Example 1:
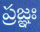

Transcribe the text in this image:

ప్రజ్ఞః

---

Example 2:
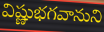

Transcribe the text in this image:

విష్ణుభగవానుని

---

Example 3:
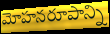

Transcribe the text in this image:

మోహనరూపాన్ని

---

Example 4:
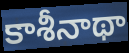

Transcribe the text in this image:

కాశీనాథా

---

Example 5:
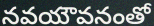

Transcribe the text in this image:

నవయౌవనంతో